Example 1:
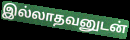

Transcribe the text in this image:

இல்லாதவனுடன்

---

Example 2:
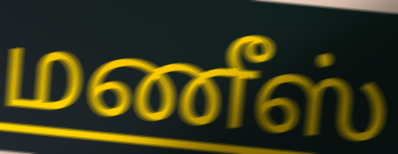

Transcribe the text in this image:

மணீஸ்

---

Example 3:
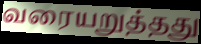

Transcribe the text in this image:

வரையறுத்தது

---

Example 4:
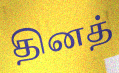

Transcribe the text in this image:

தினத்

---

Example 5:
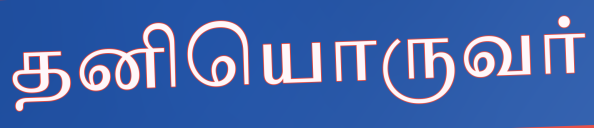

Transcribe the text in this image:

தனியொருவர்